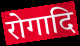
रोगादि